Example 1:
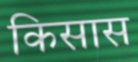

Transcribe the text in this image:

किसास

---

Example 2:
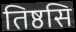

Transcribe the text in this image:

तिष्ठसि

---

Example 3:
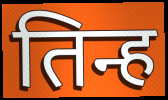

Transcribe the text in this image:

तिन्ह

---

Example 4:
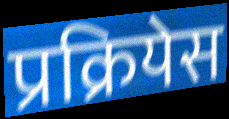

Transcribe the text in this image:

प्रक्रियेस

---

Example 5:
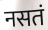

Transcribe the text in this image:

नसतं